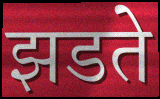
झडते